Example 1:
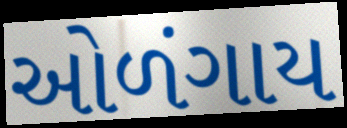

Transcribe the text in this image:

ઓળંગાય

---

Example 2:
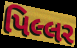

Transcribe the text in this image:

પિલ્લર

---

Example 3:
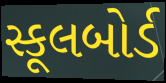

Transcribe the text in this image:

સ્કૂલબોર્ડ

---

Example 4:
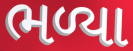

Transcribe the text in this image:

ભળ્યા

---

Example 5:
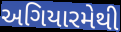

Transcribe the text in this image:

અગિયારમેથી